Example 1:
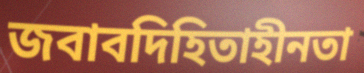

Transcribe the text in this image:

জবাবদিহিতাহীনতা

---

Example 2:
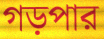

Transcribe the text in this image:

গড়পার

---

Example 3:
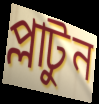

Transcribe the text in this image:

প্লাটুন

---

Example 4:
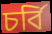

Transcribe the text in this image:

চর্বি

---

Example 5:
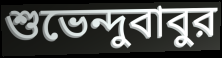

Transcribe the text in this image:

শুভেন্দুবাবুর